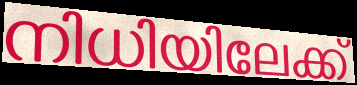
നിധിയിലേക്ക്